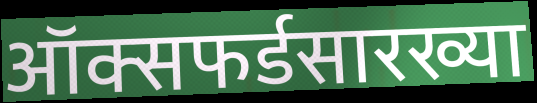
ऑक्सफर्डसारख्या